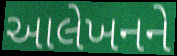
આલેખનને